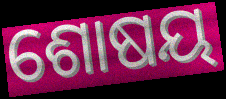
ଶୋଷୟ